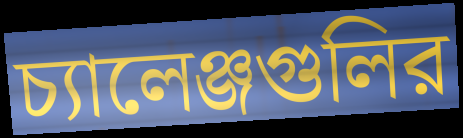
চ্যালেঞ্জগুলির